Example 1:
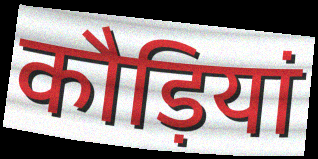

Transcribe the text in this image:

कौड़ियां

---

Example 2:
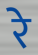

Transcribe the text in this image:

रे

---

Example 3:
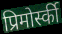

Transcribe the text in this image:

प्रिमोर्स्की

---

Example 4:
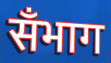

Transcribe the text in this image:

सँभाग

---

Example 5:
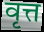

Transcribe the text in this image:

वृत्त